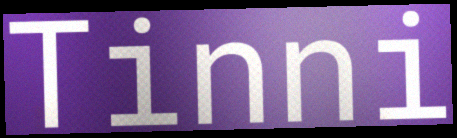
Tinni